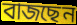
বাজছেন